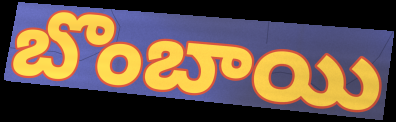
బొంబాయి